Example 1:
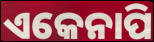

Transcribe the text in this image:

ଏକେନାପି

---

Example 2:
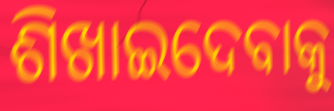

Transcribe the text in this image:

ଶିଖାଇଦେବାକୁ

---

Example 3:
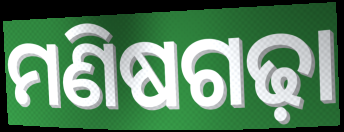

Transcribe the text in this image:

ମଣିଷଗଢ଼ା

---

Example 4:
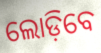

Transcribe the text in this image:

ଲୋଡ଼ିବେ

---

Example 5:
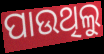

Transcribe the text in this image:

ପାଉଥିଲୁ